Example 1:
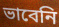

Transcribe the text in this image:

ভাবেনি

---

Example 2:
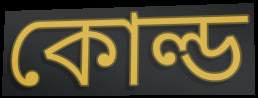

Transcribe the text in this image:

কোল্ড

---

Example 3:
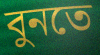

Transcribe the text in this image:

বুনতে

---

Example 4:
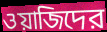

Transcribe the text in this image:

ওয়াজিদের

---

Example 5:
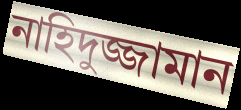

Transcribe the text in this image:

নাহিদুজ্জামান